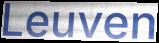
Leuven